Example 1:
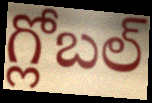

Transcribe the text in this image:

గ్లోబల్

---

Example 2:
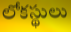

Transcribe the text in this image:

లోకస్థులు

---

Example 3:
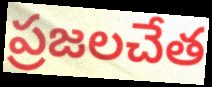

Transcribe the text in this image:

ప్రజలచేత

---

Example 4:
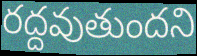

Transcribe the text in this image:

రద్దవుతుందని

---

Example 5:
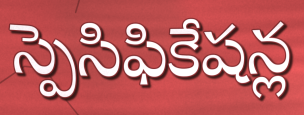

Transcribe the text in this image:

స్పెసిఫికేషన్ల